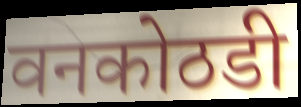
वनकोठडी